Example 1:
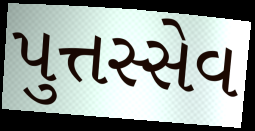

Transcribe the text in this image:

પુત્તસ્સેવ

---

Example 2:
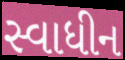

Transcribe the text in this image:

સ્વાધીન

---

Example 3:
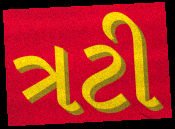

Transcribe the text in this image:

ત્રટી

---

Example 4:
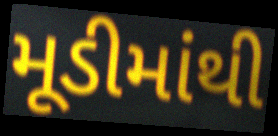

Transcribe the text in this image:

મૂડીમાંથી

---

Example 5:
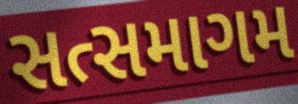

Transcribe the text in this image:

સત્સમાગમ